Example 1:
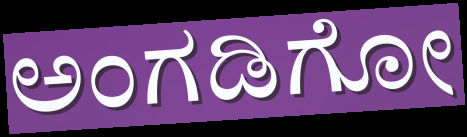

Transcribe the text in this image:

ಅಂಗಡಿಗೋ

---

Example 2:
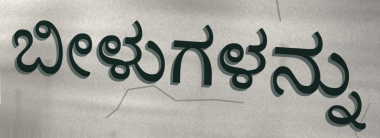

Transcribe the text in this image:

ಬೀಳುಗಳನ್ನು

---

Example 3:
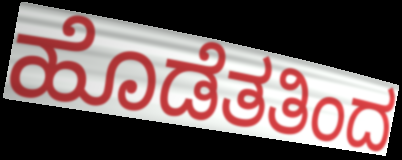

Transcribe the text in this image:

ಹೊಡೆತತಿಂದ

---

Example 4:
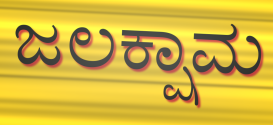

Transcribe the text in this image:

ಜಲಕ್ಷಾಮ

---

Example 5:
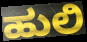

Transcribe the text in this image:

ಹುಲಿ